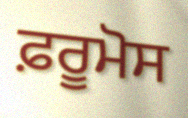
ਫ਼ਰੂਮੋਸ